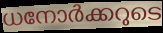
ധനോർക്കറുടെ